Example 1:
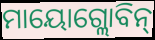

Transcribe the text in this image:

ମାୟୋଗ୍ଲୋବିନ୍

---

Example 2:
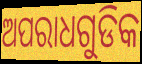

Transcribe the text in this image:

ଅପରାଧଗୁଡିକ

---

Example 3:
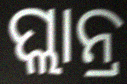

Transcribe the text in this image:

ପ୍ଲାନ୍ର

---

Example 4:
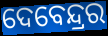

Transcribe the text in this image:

ଦେବେନ୍ଦ୍ରର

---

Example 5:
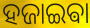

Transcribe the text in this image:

ହଜାଇଵା